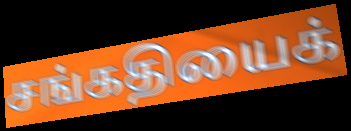
சங்கதியைக்